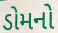
ડોમનો